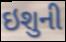
ઇશુની